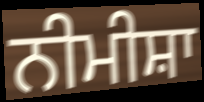
ਨੀਮੀਸ਼ਾ